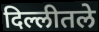
दिल्लीतले